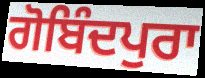
ਗੋਬਿੰਦਪੁਰਾ